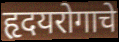
हृदयरोगाचे